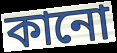
কানো